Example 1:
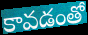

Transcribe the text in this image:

కావడంతో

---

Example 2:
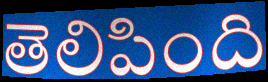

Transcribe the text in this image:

తెలిపింది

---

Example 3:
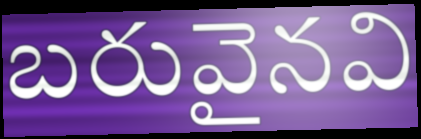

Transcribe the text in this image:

బరువైనవి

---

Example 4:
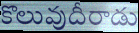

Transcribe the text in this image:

కొలువుదీరాడు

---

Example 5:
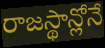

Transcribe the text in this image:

రాజస్థాన్లోనే